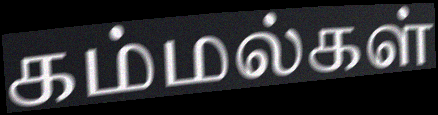
கம்மல்கள்